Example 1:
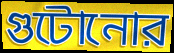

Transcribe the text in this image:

গুটোনোর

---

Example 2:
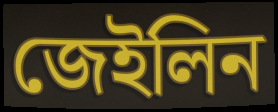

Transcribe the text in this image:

জেইলিন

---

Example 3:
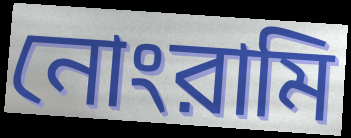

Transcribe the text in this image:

নোংরামি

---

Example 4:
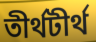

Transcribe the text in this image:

তীর্থটীর্থ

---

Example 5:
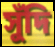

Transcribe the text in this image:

সুঁদি